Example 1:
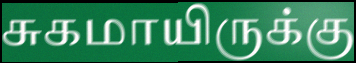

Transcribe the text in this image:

சுகமாயிருக்கு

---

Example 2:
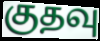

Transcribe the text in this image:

குதவு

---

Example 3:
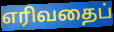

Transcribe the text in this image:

எரிவதைப்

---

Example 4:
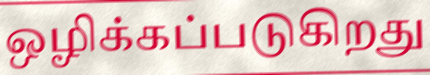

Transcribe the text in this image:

ஒழிக்கப்படுகிறது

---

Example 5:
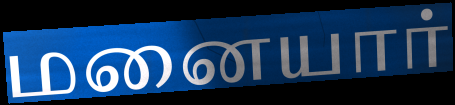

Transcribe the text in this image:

மனையார்